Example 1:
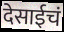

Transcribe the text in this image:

देसाईचं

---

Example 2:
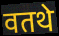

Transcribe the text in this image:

वतथे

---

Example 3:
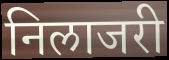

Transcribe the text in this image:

निलाजरी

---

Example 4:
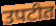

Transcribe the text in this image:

उपटीत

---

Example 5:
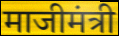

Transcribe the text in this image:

माजीमंत्री